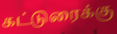
கட்டுரைக்கு